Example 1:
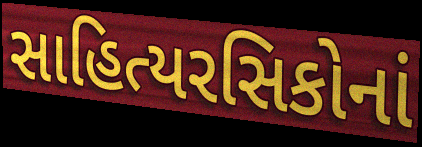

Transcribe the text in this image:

સાહિત્યરસિકોનાં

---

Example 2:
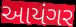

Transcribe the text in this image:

આયંગર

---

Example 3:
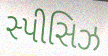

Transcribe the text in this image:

સ્પીસિઝ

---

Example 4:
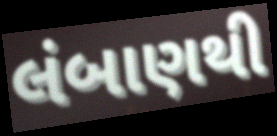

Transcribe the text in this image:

લંબાણથી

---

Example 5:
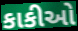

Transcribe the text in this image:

કાકીઓ